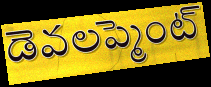
డెవలప్మెంట్